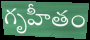
గృహీతం